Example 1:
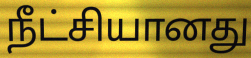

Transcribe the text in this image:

நீட்சியானது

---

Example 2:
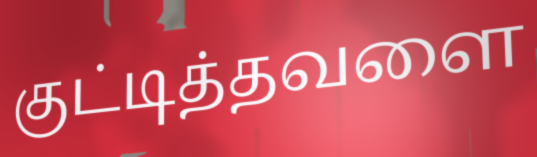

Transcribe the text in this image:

குட்டித்தவளை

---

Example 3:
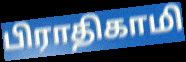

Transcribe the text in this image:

பிராதிகாமி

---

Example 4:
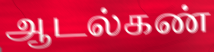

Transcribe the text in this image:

ஆடல்கண்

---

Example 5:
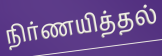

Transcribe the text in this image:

நிர்ணயித்தல்